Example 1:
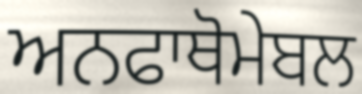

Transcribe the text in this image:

ਅਨਫਾਥੋਮੇਬਲ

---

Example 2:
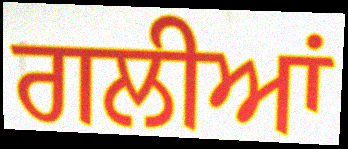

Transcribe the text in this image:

ਗਲੀਆਂ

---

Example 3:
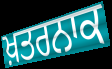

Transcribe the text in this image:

ਖ਼ਤਰਨਾਕ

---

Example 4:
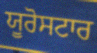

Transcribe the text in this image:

ਯੂਰੋਸਟਾਰ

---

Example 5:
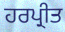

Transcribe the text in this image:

ਹਰਪ੍ਰੀਤ